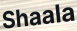
Shaala